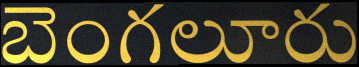
బెంగలూరు